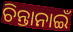
ଚିନ୍ତାନାଇଁ